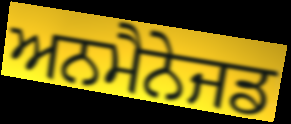
ਅਨਮੈਨੇਜਡ